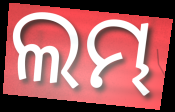
ଲମ୍ଭ